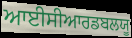
ਆਈਸੀਆਰਡਬਲਯੂ